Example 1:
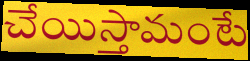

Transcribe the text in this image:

చేయిస్తామంటే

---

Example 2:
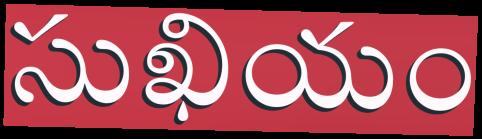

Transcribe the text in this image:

సుఖియం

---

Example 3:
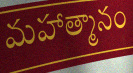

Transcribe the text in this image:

మహాత్మానం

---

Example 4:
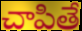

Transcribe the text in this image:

చాపితే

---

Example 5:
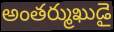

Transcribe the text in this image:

అంతర్ముఖుడై